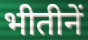
भीतीनें